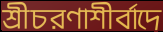
শ্রীচরণাশীর্বাদে